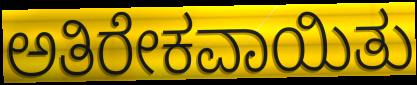
ಅತಿರೇಕವಾಯಿತು